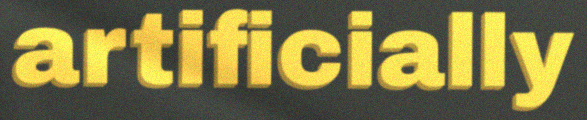
artificially